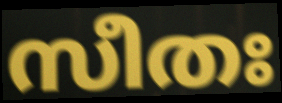
സീതഃ